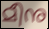
മീനു